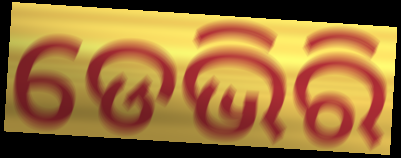
ଡେଭିରି